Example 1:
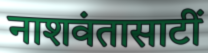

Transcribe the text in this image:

नाशवंतासाटीं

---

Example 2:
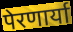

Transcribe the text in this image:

पेरणार्या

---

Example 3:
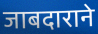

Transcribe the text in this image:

जाबदाराने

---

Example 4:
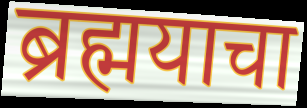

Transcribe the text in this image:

ब्रह्मयाचा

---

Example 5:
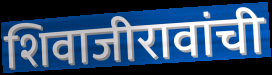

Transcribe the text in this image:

शिवाजीरावांची